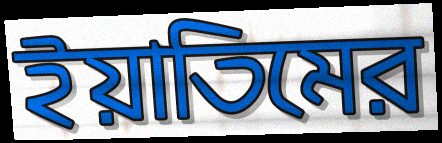
ইয়াতিমের